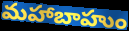
మహాబాహుం